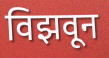
विझवून